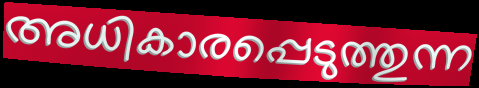
അധികാരപ്പെടുത്തുന്ന